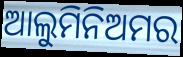
ଆଲୁମିନିଅମର